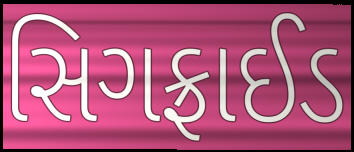
સિગફ્રાઈડ